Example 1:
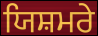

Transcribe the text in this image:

ਯਿਸ਼ਮਰੇ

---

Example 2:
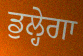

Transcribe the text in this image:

ਡੁਲ੍ਹੇਗਾ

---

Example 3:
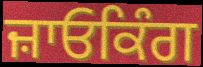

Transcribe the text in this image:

ਜ਼ਾਓਕਿੰਗ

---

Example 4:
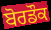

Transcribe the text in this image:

ਬੋਰਡੌਕ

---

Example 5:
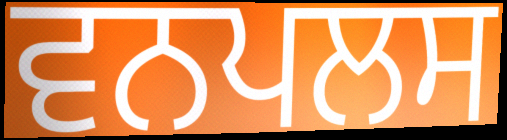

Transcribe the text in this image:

ਵਨਪਲਸ